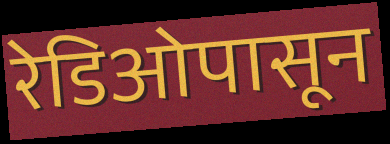
रेडिओपासून